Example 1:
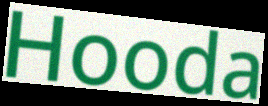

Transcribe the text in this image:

Hooda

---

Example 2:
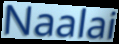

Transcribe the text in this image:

Naalai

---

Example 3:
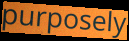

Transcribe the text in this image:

purposely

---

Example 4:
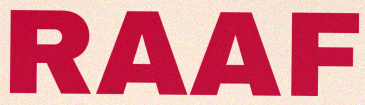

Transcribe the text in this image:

RAAF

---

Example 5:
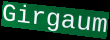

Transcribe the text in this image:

Girgaum